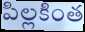
పిల్లకింత